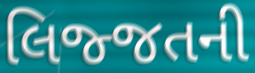
લિજ્જતની